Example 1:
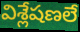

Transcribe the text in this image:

విశ్లేషణలే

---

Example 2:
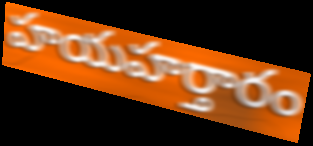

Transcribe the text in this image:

హయహర్తారం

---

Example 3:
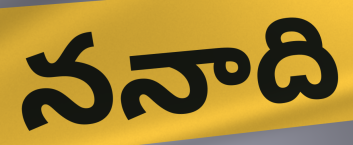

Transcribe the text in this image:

ననాది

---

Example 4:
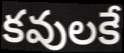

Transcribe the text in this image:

కవులకే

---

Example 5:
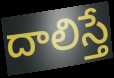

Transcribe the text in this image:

దాలిస్తే